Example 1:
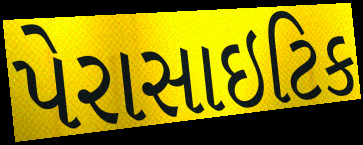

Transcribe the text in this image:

પેરાસાઇટિક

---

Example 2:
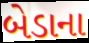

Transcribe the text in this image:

બેડાના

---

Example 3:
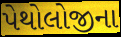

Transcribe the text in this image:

પેથોલોજીના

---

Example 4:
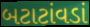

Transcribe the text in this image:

બટાટાંવડાં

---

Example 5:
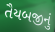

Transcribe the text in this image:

તૈયબજીનું